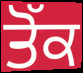
ਤੋੱਕ